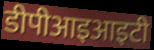
डीपीआइआइटी